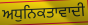
ਅਧੁਨਿਕਤਾਵਾਦੀ